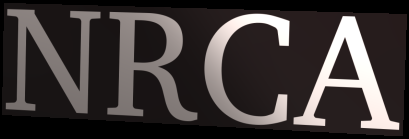
NRCA